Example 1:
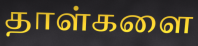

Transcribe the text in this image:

தாள்களை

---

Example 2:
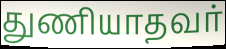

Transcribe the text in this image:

துணியாதவர்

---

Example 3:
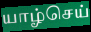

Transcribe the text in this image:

யாழ்செய்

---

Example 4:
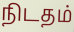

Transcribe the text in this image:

நிடதம்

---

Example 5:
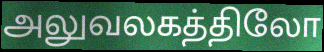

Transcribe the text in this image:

அலுவலகத்திலோ